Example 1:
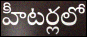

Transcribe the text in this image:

హీటర్లలో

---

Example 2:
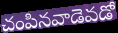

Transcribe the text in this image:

చంపినవాడెవడో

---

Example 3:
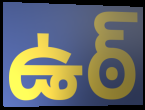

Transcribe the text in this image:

ఉఠ్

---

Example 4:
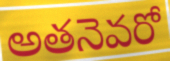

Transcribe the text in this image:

అతనెవరో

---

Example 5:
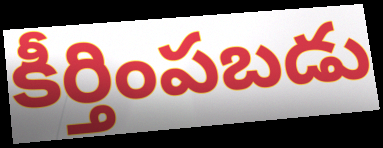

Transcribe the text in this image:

కీర్తింపబడు